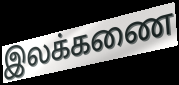
இலக்கணை